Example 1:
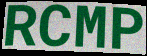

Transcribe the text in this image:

RCMP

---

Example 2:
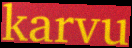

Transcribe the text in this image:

karvu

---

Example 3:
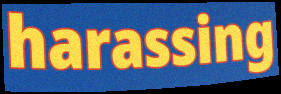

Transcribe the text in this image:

harassing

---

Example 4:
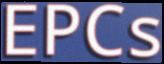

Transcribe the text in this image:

EPCs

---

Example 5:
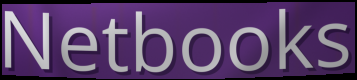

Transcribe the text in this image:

Netbooks